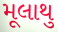
મૂલાથુ